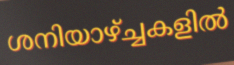
ശനിയാഴ്ച്ചകളിൽ